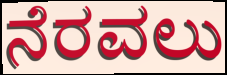
ನೆರವಲು